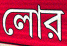
লোর